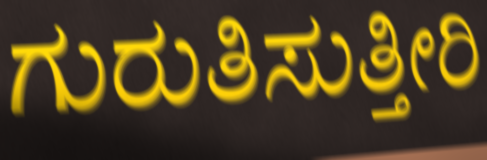
ಗುರುತಿಸುತ್ತೀರಿ